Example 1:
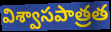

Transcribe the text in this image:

విశ్వాసపాత్రత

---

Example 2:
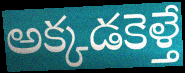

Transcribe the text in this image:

అక్కడకెళ్తే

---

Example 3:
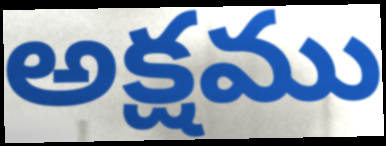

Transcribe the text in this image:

అక్షము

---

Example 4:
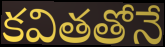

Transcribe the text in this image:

కవితతోనే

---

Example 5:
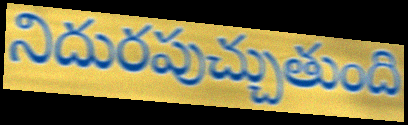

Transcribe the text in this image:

నిదురపుచ్చుతుంది